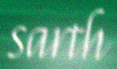
sarth